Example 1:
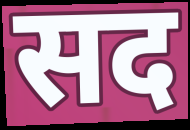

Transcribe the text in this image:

सद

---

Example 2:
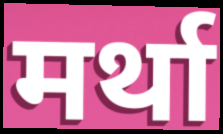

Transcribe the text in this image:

मर्था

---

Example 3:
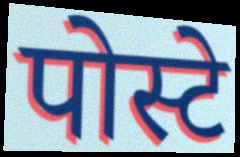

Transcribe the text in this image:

पोस्टे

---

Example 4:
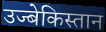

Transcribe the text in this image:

उज्बेकिस्तान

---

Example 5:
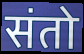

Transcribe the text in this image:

संतो